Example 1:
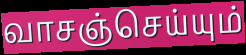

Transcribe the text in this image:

வாசஞ்செய்யும்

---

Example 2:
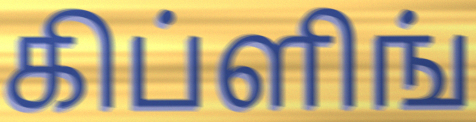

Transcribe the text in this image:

கிப்ளிங்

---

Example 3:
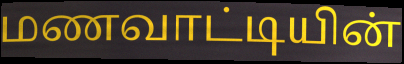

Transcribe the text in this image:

மணவாட்டியின்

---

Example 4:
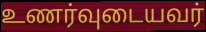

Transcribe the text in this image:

உணர்வுடையவர்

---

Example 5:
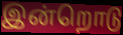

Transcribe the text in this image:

இன்றொடு